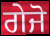
ਗੇਜੋ